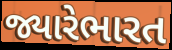
જ્યારેભારત